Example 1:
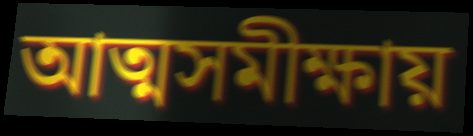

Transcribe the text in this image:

আত্মসমীক্ষায়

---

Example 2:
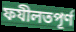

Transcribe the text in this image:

ফযীলতপূর্ণ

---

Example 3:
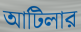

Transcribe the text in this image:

আটিলার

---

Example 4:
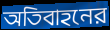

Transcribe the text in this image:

অতিবাহনের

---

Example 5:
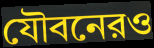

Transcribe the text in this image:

যৌবনেরও